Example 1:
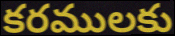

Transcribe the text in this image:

కరములకు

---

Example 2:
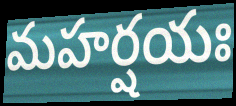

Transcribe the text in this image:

మహర్షయః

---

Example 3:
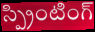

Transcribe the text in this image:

స్ప్రింటింగ్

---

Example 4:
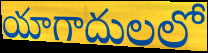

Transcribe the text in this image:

యాగాదులలో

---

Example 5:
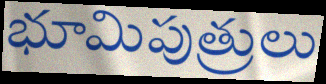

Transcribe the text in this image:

భూమిపుత్రులు